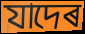
যাদেৰ